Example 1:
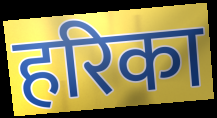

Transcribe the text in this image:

हरिका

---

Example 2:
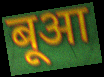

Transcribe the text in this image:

बूआ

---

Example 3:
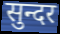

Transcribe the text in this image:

सुन्दर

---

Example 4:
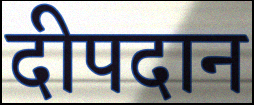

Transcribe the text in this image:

दीपदान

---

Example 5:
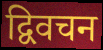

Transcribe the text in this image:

द्विवचन